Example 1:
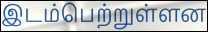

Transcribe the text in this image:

இடம்பெற்றுள்ளன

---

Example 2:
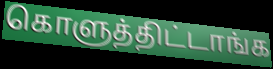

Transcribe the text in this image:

கொளுத்திட்டாங்க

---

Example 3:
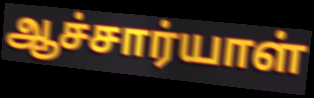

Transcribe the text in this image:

ஆச்சார்யாள்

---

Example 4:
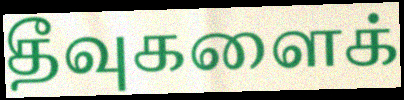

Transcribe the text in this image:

தீவுகளைக்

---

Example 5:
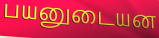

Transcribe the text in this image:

பயனுடையன